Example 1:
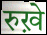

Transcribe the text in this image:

रुख़े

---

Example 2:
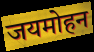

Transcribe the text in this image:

जयमोहन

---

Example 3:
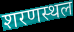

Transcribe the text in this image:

शरणस्थल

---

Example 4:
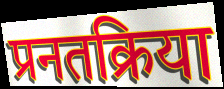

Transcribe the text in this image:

प्रनतक्रिया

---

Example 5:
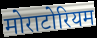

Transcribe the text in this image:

मोराटोरियम